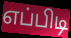
எப்பிடி